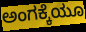
ಅಂಗಕ್ಕೆಯೂ